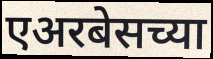
एअरबेसच्या